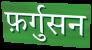
फ़र्गुसन